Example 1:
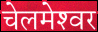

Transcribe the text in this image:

चेलमेश्‍वर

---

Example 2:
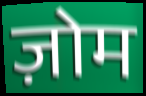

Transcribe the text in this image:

ज़ोम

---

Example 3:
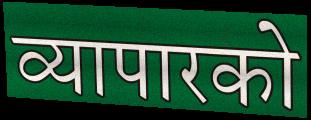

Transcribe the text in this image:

व्यापारको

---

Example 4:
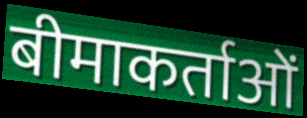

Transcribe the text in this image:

बीमाकर्ताओं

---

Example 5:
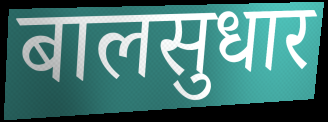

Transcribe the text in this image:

बालसुधार